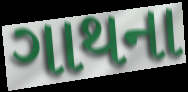
ગાથના